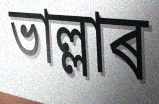
ভাল্লাৰ